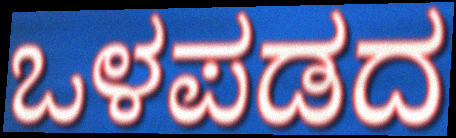
ಒಳಪಡದ